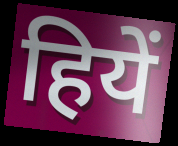
हियें